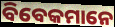
ବିବେକମାନେ